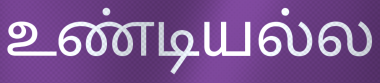
உண்டியல்ல